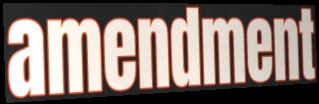
amendment